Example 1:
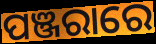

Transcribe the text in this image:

ପଞ୍ଜରାରେ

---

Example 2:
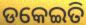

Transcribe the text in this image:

ଡକେଇତି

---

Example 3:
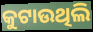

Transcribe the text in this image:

କୁଟାଉଥିଲି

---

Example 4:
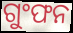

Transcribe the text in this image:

ଗୁଂଫନ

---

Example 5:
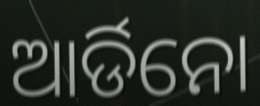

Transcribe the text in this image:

ଆର୍ଡିନୋ